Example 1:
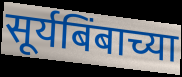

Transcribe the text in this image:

सूर्यबिंबाच्या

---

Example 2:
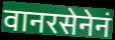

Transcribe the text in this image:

वानरसेनेनं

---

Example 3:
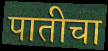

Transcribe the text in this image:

पातीचा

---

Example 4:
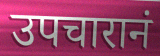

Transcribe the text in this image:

उपचारानं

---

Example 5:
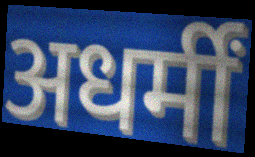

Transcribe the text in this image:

अधर्मीं